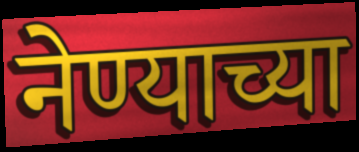
नेण्याच्या